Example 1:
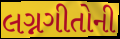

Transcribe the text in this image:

લગ્નગીતોની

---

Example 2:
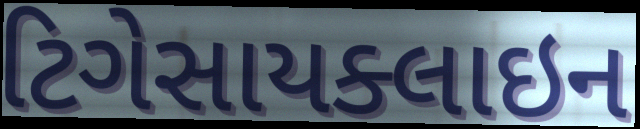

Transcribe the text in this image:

ટિગેસાયક્લાઇન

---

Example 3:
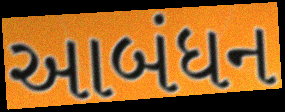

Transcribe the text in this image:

આબંધન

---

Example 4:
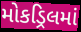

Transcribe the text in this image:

મોકડ્રિલમાં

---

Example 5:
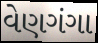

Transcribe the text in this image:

વેણગંગા